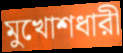
মুখোশধারী